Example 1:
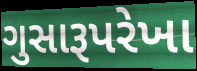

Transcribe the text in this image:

ગુસારૂપરેખા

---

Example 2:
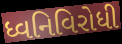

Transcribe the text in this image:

ધ્વનિવિરોધી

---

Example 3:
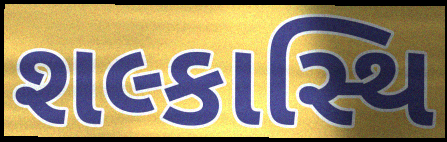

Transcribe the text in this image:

શલ્કાસ્થિ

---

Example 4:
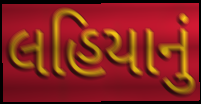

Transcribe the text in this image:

લહિયાનું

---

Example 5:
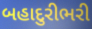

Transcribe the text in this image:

બહાદુરીભરી